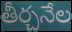
తీర్చనేల